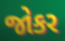
જોકર